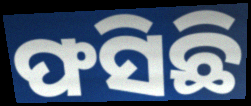
ଫସିଛି